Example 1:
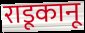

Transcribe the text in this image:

राडूकानू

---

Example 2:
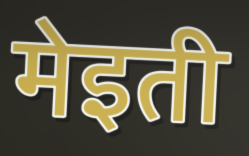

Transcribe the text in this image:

मेइती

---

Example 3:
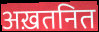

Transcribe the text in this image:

अख़तनित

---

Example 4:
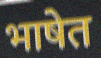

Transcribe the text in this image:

भाषेत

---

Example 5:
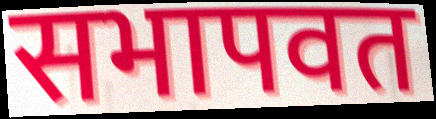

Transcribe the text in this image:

सभापवत